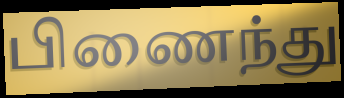
பிணைந்து